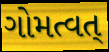
ગોમત્વત્